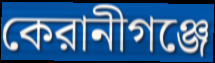
কেরানীগঞ্জে